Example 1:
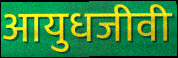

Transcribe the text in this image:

आयुधजीवी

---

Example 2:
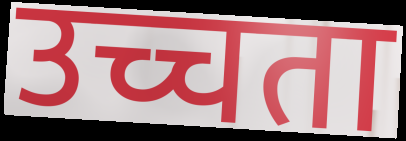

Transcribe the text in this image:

उच्चता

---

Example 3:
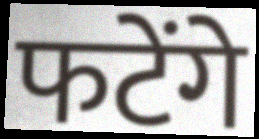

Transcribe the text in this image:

फटेंगे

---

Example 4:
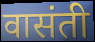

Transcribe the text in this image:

वासंती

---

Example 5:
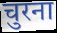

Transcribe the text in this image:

चुरना